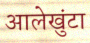
आलेखुंटा